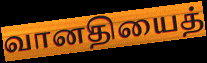
வானதியைத்